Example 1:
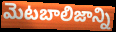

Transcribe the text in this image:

మెటబాలిజాన్ని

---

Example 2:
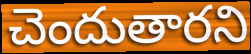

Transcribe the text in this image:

చెందుతారని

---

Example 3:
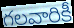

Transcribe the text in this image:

గలవారికీ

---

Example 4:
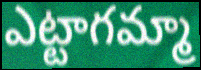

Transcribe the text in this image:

ఎట్టాగమ్మా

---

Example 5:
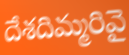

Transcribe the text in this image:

దేశదిమ్మరివై